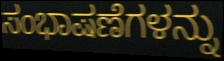
ಸಂಭಾಷಣೆಗಳನ್ನು